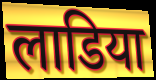
लाडिया